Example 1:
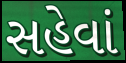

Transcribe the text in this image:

સહેવાં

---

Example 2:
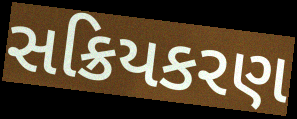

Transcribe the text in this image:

સક્રિયકરણ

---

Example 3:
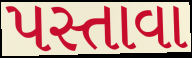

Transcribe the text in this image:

પસ્તાવા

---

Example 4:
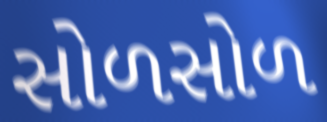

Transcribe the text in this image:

સોળસોળ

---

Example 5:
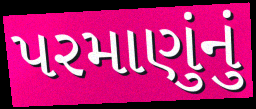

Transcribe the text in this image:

પરમાણુંનું